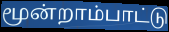
மூன்றாம்பாட்டு